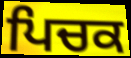
ਪਿਚਕ